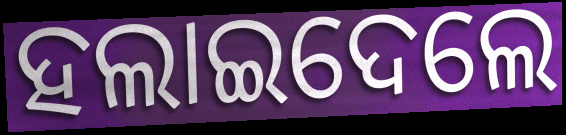
ହଲାଇଦେଲେ